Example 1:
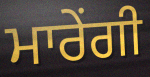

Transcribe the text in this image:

ਮਾਰੇਂਗੀ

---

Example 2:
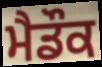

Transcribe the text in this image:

ਮੈਡੌਕ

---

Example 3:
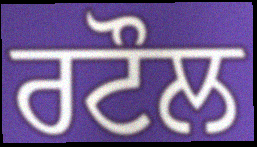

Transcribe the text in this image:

ਰਟੌਲ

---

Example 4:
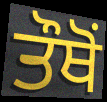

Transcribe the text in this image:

ਤੌਥੋਂ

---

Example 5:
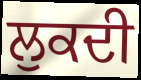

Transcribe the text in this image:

ਲੁਕਦੀ